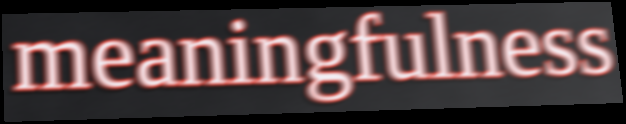
meaningfulness